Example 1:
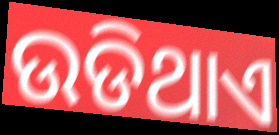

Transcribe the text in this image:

ଉଡିଥାଏ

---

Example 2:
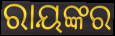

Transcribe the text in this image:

ରାୟଙ୍କର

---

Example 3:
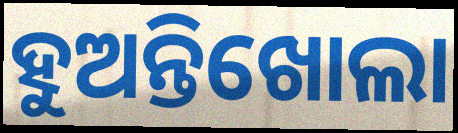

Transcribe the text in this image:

ହୁଅନ୍ତିଖୋଲା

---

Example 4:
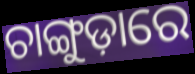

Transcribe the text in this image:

ଚାଙ୍ଗୁଡ଼ାରେ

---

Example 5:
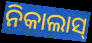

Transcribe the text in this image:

ନିକାଲାସ୍